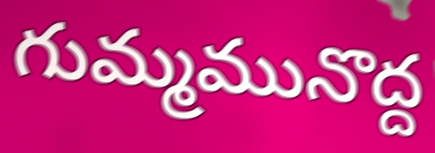
గుమ్మమునొద్ద